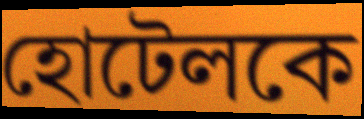
হোটেলকে